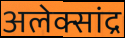
अलेक्सांद्र